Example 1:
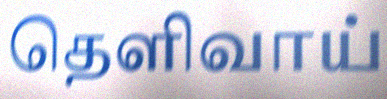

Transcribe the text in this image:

தெளிவாய்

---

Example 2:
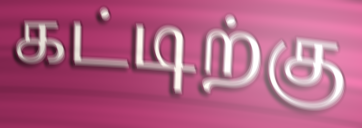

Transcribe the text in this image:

கட்டிற்கு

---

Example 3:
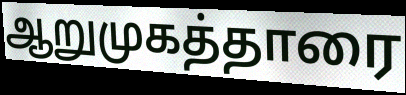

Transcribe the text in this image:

ஆறுமுகத்தாரை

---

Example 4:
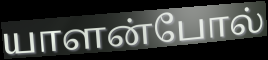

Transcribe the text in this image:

யாளன்போல்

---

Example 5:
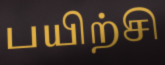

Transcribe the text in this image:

பயிற்சி